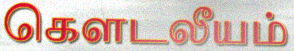
கெளடலீயம்